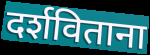
दर्शविताना